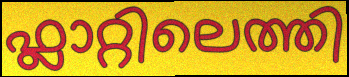
ഫ്ലാറ്റിലെത്തി